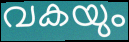
വകയും